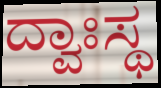
ದ್ವಾಃಸ್ಥ